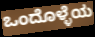
ಒಂದೊಳ್ಳೆಯ